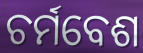
ଚର୍ମବେଶ